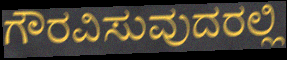
ಗೌರವಿಸುವುದರಲ್ಲಿ